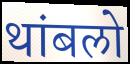
थांबलो